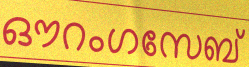
ഔറംഗസേബ്